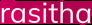
rasitha